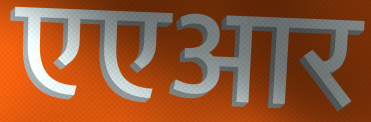
एएआर